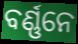
ବର୍ଣ୍ଣନେ